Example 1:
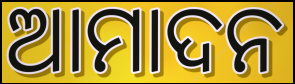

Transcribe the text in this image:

ଆମାଦନ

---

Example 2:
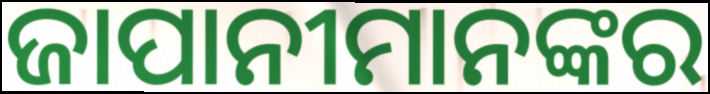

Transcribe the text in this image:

ଜାପାନୀମାନଙ୍କର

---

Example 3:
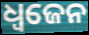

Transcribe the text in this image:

ଧ୍ଵଜେନ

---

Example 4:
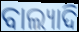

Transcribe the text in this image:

ବାଲ୍ୟାଦି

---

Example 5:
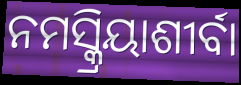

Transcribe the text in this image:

ନମସ୍କ୍ରିୟାଶୀର୍ବା